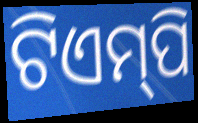
ଟିଏମ୍‌ପି